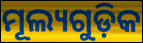
ମୂଲ୍ୟଗୁଡ଼ିକ